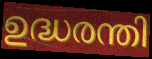
ഉദ്ധരന്തി